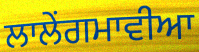
ਲਾਲੇਂਗਮਾਵੀਆ